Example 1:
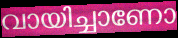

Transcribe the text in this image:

വായിച്ചാണോ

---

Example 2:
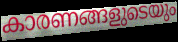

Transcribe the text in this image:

കാരണങ്ങളുടെയും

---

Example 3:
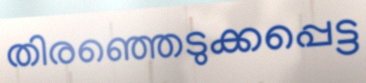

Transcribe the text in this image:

തിരഞ്ഞെടുക്കപ്പെട്ട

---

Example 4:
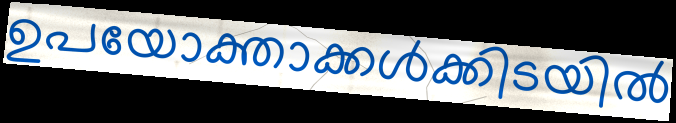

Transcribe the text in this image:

ഉപയോക്താക്കൾക്കിടയിൽ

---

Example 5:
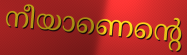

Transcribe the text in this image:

നീയാണെന്റെ